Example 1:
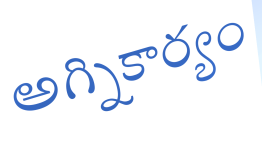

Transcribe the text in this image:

అగ్నికార్యం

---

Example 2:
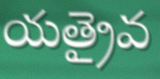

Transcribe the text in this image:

యత్రైవ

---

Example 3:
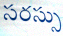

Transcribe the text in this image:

సరస్సు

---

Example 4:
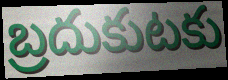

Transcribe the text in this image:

బ్రదుకుటకు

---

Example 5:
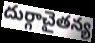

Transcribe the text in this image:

దుర్గాచైతన్య